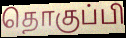
தொகுப்பி